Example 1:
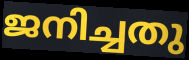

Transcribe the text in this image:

ജനിച്ചതു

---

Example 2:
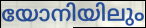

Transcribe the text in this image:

യോനിയിലും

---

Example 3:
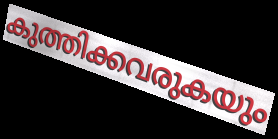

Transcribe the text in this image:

കുത്തിക്കവരുകയും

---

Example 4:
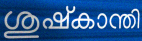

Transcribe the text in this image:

ശുഷ്കാന്തി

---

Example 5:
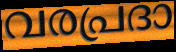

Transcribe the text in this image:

വരപ്രദാ